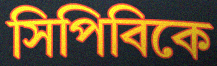
সিপিবিকে